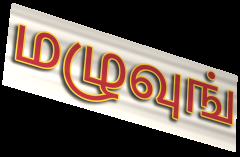
மழுவுங்